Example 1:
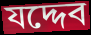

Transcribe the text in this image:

যদ্দেব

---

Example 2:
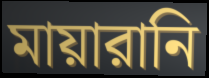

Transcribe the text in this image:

মায়ারানি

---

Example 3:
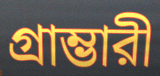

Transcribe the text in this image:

গ্রাম্ভারী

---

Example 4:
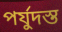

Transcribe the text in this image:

পর্যুদস্ত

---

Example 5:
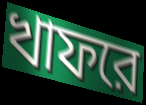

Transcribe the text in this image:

খাফরে